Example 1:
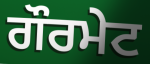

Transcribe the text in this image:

ਗੌਰਮੇਟ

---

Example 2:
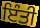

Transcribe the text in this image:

ਇੰਤੀ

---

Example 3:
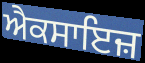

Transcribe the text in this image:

ਐਕਸਾਇਜ਼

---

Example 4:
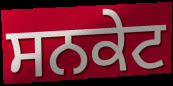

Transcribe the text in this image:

ਸਨਕੇਟ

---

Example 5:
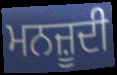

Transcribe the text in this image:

ਮਨਜ਼ੂਦੀ